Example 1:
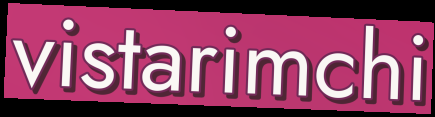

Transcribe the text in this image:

vistarimchi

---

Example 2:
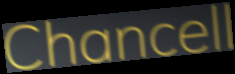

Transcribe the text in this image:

Chancell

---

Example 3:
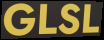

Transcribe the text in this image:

GLSL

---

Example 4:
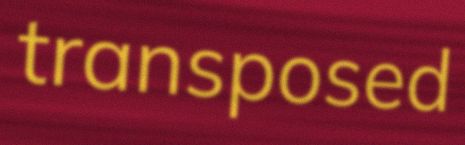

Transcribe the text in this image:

transposed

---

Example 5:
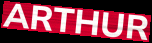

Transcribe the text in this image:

ARTHUR